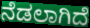
ನೆಡಲಾಗಿದೆ